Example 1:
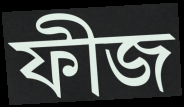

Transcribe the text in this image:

ফীজ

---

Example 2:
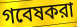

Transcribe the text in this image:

গবেষকরা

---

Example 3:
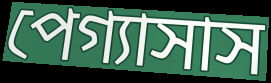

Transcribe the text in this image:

পেগ্যাসাস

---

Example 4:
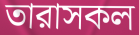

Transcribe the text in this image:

তারাসকল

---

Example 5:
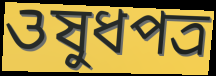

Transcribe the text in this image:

ওষুধপত্র